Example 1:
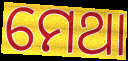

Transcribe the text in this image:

ମେଥା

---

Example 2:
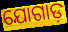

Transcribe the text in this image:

ଯୋଗାଡ଼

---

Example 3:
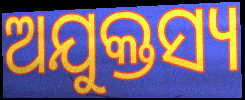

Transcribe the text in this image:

ଅଯୁକ୍ତସ୍ୟ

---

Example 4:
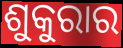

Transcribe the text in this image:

ଶୁକୁରାର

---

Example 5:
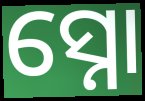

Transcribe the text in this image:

ସ୍ନୋ